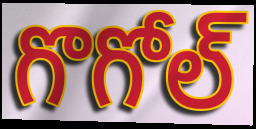
గొగోల్